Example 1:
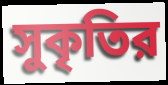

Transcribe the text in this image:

সুকৃতির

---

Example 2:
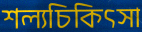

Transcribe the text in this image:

শল্যচিকিৎসা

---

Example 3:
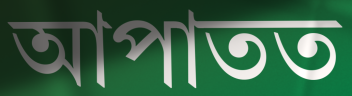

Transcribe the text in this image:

আপাতত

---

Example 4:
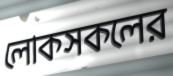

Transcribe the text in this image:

লোকসকলের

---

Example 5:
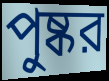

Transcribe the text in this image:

পুষ্কর